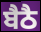
ਬੈਠੈ